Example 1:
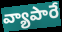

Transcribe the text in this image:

వ్యాపారే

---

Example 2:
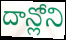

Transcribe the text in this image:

దాన్లోని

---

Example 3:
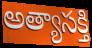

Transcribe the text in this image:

అత్యాసక్తి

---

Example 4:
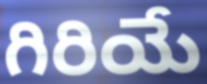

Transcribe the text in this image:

గిరియే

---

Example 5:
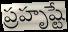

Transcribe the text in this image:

ప్రహృష్టే